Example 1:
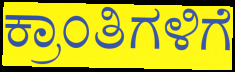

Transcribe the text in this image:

ಕ್ರಾಂತಿಗಳಿಗೆ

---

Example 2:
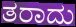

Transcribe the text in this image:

ತರಾದು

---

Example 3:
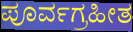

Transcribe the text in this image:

ಪೂರ್ವಗ್ರಹೀತ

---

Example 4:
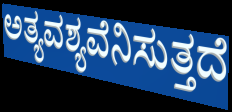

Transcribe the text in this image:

ಅತ್ಯವಶ್ಯವೆನಿಸುತ್ತದೆ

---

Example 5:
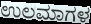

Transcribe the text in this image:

ಉಲಮಾಗಳ